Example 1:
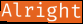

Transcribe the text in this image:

Alright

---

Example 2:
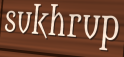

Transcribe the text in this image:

sukhrup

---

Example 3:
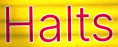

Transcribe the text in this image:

Halts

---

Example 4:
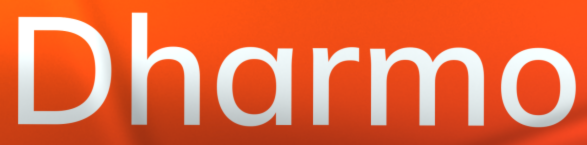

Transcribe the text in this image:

Dharmo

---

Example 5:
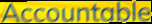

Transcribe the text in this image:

Accountable